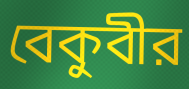
বেকুবীর